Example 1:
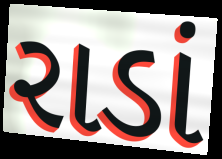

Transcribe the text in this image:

રાડાં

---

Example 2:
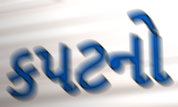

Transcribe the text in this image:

કપટનો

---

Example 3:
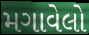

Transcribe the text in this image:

મગાવેલો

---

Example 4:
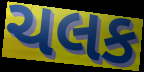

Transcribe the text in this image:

ચલક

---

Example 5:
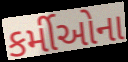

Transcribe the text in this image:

કર્મીઓના